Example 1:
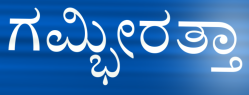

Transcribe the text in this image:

ಗಮ್ಭೀರತ್ತಾ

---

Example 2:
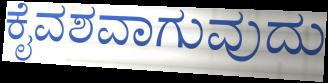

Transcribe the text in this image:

ಕೈವಶವಾಗುವುದು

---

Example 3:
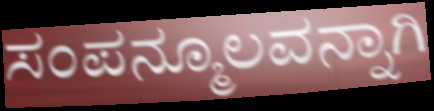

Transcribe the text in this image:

ಸಂಪನ್ಮೂಲವನ್ನಾಗಿ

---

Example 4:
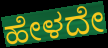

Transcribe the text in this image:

ಹೇಳದೇ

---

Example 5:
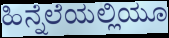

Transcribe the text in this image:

ಹಿನ್ನೆಲೆಯಲ್ಲಿಯೂ